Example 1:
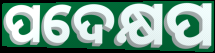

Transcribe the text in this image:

ପଦେକ୍ଷପ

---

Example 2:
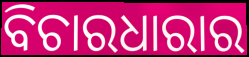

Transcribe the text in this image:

ବିଚାରଧାରାର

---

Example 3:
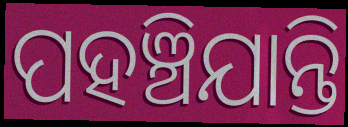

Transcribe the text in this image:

ପହଞ୍ଚିଯାନ୍ତି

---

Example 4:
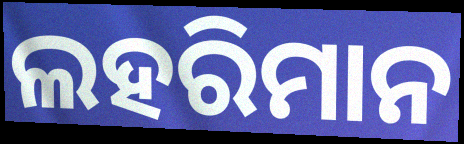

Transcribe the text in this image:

ଲହରିମାନ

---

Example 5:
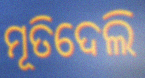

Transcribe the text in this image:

ମୂତିଦେଲି